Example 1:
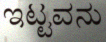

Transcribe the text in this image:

ಇಟ್ಟವನು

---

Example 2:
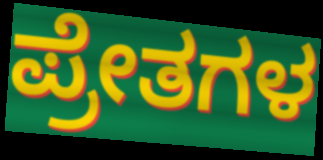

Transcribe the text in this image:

ಪ್ರೇತಗಳ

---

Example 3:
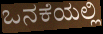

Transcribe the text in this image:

ಒನಕೆಯಲ್ಲಿ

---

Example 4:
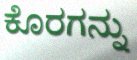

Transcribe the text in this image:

ಕೊರಗನ್ನು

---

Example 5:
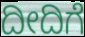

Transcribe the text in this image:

ದೀದಿಗೆ